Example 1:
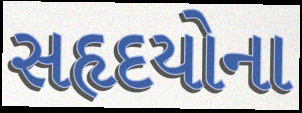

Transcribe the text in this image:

સહૃદયોના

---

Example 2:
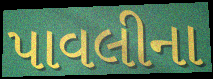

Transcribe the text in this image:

પાવલીના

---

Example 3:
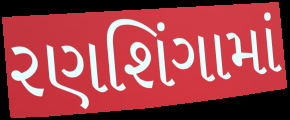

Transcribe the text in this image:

રણશિંગામાં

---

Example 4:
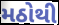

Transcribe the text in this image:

મઠોથી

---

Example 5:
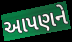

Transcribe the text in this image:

આપણને